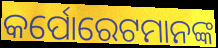
କର୍ପୋରେଟମାନଙ୍କ